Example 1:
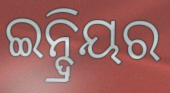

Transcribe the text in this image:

ଇନ୍ଦ୍ରିୟର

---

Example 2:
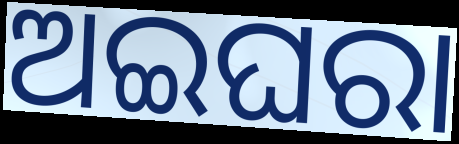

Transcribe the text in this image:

ଅଇଘରା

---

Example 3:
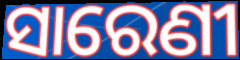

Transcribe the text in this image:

ସାରେଣୀ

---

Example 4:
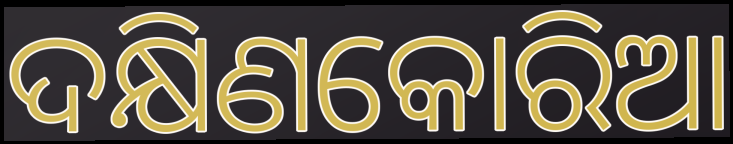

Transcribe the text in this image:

ଦକ୍ଷିଣକୋରିଆ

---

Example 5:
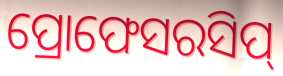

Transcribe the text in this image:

ପ୍ରୋଫେସରସିପ୍